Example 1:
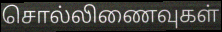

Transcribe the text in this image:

சொல்லிணைவுகள்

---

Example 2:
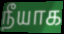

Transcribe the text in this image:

நீயாக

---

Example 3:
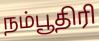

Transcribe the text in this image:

நம்பூதிரி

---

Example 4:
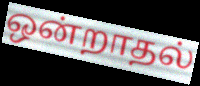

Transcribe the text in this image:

ஒன்றாதல்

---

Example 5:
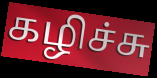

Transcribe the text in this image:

கழிச்சு